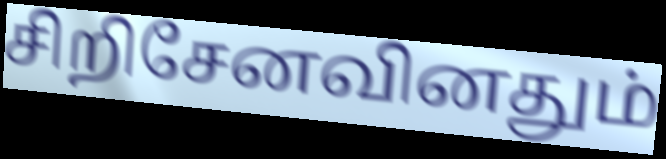
சிறிசேனவினதும்